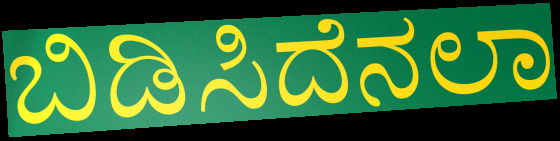
ಬಿಡಿಸಿದೆನಲಾ